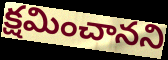
క్షమించానని